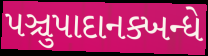
પઞ્ચુપાદાનક્ખન્ધે